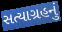
સત્યાગ્રહનું